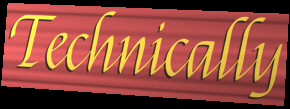
Technically